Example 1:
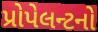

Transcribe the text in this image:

પ્રોપેલન્ટનો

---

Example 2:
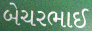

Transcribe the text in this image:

બેચરભાઈ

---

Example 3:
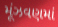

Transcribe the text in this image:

મૂંઝવણમાં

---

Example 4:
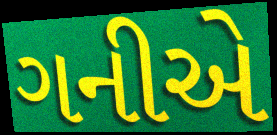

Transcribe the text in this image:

ગનીએ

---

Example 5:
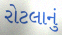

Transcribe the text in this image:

રોટલાનું